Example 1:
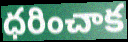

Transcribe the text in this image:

ధరించాక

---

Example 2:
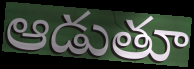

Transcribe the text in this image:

ఆడుతూ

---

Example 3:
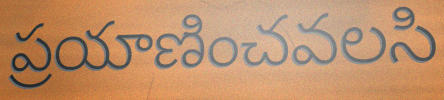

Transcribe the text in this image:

ప్రయాణించవలసి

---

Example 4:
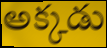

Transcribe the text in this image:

అక్కడు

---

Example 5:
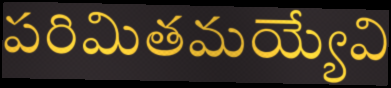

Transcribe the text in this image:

పరిమితమయ్యేవి